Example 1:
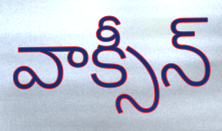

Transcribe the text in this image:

వాక్సీన్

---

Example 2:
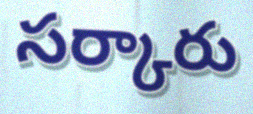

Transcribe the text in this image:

సర్కారు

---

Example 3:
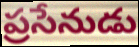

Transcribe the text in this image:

ప్రసేనుడు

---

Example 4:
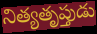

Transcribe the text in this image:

నిత్యతృప్తుడు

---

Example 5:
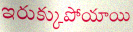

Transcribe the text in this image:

ఇరుక్కుపోయాయి